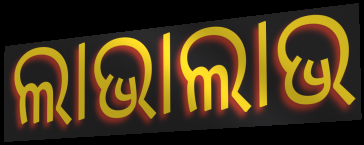
ଲାଭାଲାଭ